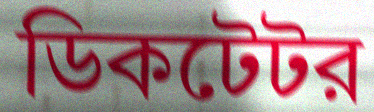
ডিকটেটর